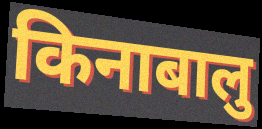
किनाबालु